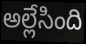
అల్లేసింది